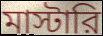
মাস্টারি